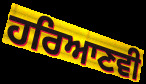
ਹਰਿਆਣਵੀ